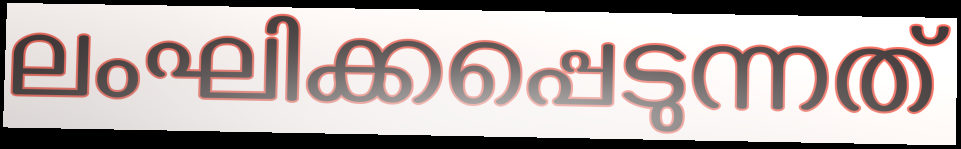
ലംഘിക്കപ്പെടുന്നത്